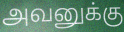
அவனுக்கு